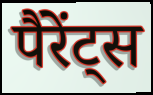
पैरेंट्स